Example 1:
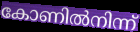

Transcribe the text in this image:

കോണിൽനിന്ന്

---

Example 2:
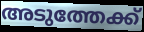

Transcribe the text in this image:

അടുത്തേക്ക്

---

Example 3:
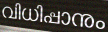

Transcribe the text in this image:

വിധിപ്പാനും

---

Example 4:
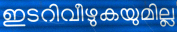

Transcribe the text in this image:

ഇടറിവീഴുകയുമില്ല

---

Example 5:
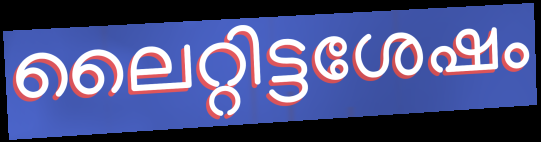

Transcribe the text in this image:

ലൈറ്റിട്ടശേഷം